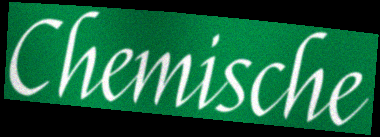
Chemische